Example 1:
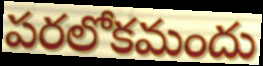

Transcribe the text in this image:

పరలోకమందు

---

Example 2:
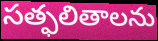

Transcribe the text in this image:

సత్ఫలితాలను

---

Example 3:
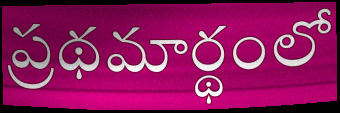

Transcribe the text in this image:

ప్రథమార్థంలో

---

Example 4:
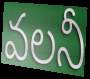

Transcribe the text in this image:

వలనీ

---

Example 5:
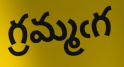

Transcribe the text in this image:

గ్రమ్మఁగ